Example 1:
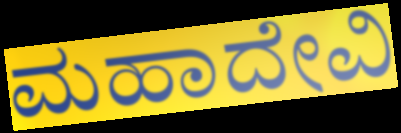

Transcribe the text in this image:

ಮಹಾದೇವಿ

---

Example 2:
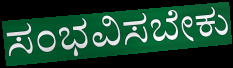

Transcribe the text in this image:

ಸಂಭವಿಸಬೇಕು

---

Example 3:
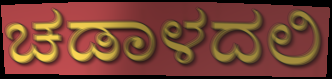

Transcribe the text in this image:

ಚಡಾಳದಲಿ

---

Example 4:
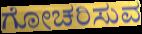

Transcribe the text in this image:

ಗೋಚರಿಸುವ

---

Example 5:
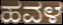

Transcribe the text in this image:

ಹವಳ